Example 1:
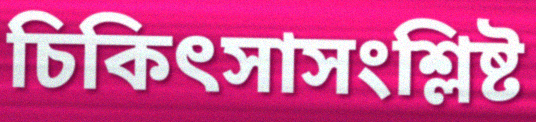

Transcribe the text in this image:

চিকিৎসাসংশ্লিষ্ট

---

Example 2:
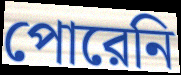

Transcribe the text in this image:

পোরেনি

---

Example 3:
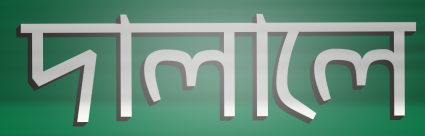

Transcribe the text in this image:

দালালে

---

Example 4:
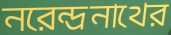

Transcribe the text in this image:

নরেন্দ্রনাথের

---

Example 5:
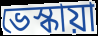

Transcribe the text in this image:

ভেস্কায়া